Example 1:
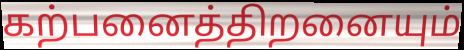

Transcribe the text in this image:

கற்பனைத்திறனையும்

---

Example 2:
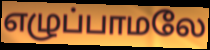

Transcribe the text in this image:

எழுப்பாமலே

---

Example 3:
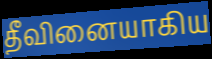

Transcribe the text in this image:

தீவினையாகிய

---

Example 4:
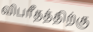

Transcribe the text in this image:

விபரீதத்திற்கு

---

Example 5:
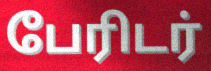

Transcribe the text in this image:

பேரிடர்